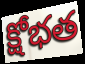
క్షోభత